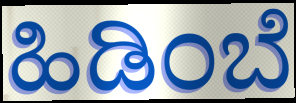
ಹಿಡಿಂಬೆ